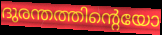
ദുരന്തത്തിന്റെയോ